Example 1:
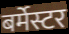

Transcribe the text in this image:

बर्मेस्टर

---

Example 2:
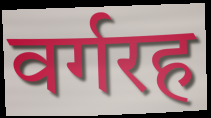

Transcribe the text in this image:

वर्गरह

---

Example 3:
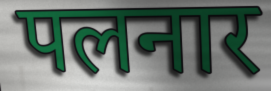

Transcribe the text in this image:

पलनार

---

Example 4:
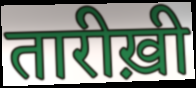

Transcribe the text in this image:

तारीख़ी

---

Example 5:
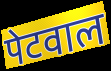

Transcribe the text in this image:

पेटवाल